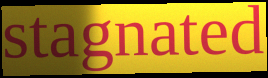
stagnated